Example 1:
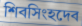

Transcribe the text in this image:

শিবসিংহদেব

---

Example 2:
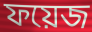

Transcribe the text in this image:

ফয়েজ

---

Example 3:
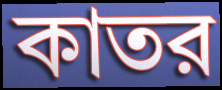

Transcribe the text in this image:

কাতর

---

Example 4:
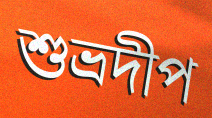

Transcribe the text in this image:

শুভ্রদীপ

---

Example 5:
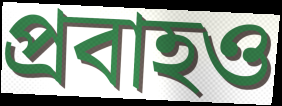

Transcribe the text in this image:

প্রবাহও